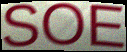
SOE